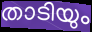
താടിയും